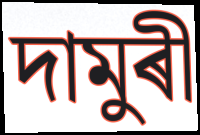
দামুৰী